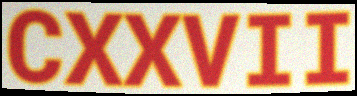
CXXVII